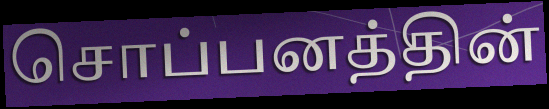
சொப்பனத்தின்